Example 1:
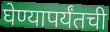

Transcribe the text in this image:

घेण्यापर्यंतची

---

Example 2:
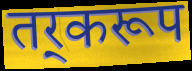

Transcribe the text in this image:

तर्करूप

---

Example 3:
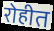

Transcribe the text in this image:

रोहीत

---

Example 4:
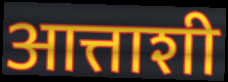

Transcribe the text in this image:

आत्ताशी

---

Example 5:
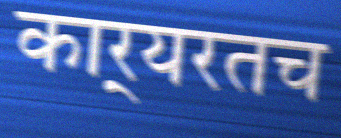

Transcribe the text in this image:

कार्यरतच